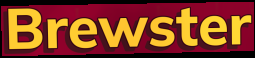
Brewster